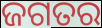
ଜଗତର